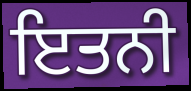
ਇਤਨੀ